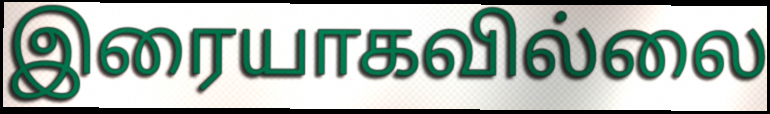
இரையாகவில்லை